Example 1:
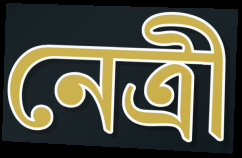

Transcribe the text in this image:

নেত্ৰী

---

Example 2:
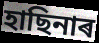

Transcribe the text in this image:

হাছিনাৰ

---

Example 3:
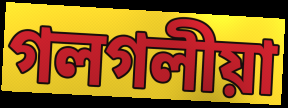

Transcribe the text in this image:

গলগলীয়া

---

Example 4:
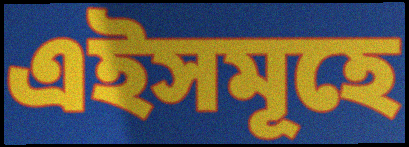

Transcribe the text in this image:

এইসমূহে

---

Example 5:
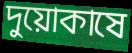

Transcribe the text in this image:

দুয়োকাষে